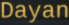
Dayan